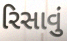
રિસાવું